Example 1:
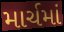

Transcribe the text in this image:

માર્ચમાં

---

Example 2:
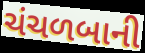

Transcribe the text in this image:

ચંચળબાની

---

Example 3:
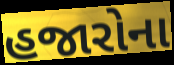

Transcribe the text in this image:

હજારોના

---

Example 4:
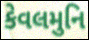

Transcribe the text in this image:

કેવલમુનિ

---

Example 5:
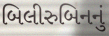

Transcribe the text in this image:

બિલીરુબિનનું